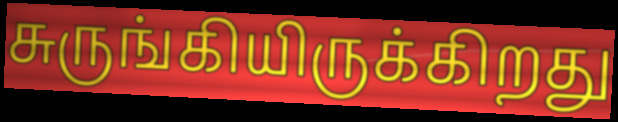
சுருங்கியிருக்கிறது